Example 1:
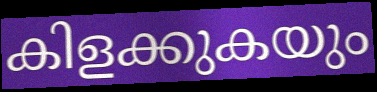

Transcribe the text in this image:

കിളക്കുകയും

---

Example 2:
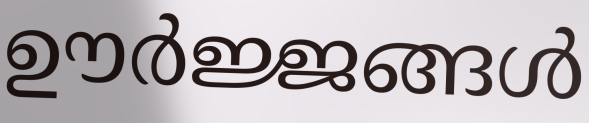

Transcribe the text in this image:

ഊർജ്ജങ്ങൾ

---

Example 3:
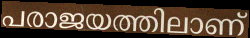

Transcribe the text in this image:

പരാജയത്തിലാണ്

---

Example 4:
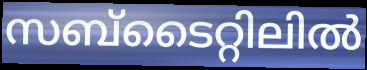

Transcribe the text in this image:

സബ്ടൈറ്റിലിൽ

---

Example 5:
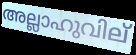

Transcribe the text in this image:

അല്ലാഹുവില്